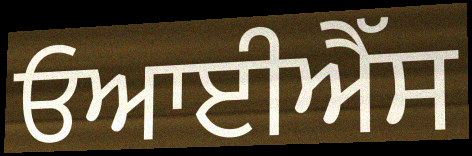
ਓਆਈਐੱਸ